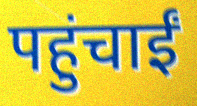
पहुंचाईं